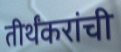
तीर्थंकरांची